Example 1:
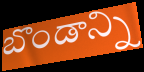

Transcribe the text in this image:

బొండాన్ని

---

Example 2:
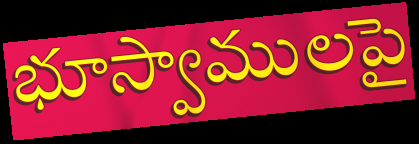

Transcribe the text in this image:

భూస్వాములపై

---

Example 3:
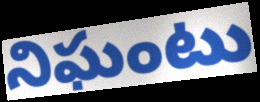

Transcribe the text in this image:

నిఘంటు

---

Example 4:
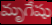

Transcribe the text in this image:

మృగేషు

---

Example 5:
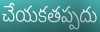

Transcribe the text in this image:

చేయకతప్పదు